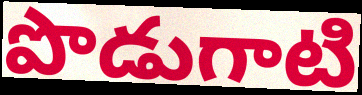
పొడుగాటి